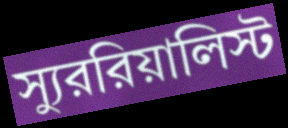
স্যুররিয়ালিস্ট